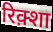
रिक़्शा